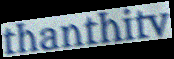
thanthitv